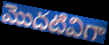
మొదటివిగా